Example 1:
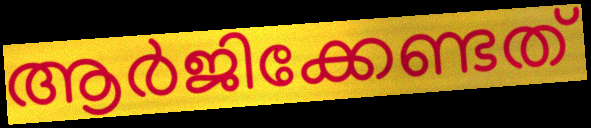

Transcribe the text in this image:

ആർജിക്കേണ്ടത്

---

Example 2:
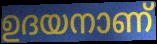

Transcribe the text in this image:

ഉദയനാണ്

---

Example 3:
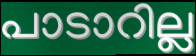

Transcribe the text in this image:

പാടാറില്ല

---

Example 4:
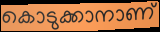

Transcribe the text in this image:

കൊടുക്കാനാണ്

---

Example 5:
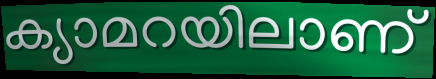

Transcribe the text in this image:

ക്യാമറയിലാണ്